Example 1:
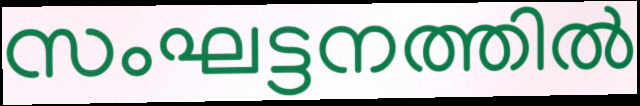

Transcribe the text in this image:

സംഘട്ടനത്തിൽ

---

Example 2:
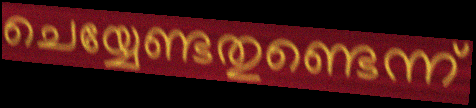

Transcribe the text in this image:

ചെയ്യേണ്ടതുണ്ടെന്ന്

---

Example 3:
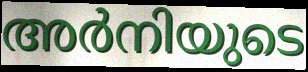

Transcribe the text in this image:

അർനിയുടെ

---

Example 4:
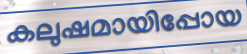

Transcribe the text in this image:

കലുഷമായിപ്പോയ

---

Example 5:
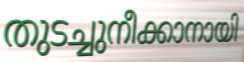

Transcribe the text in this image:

തുടച്ചുനീക്കാനായി